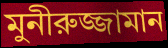
মুনীরুজ্জামান